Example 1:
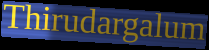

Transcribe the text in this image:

Thirudargalum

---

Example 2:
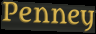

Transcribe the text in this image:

Penney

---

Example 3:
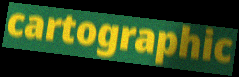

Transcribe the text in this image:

cartographic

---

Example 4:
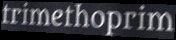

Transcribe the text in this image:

trimethoprim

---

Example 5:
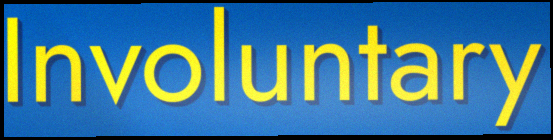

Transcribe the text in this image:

Involuntary